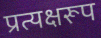
प्रत्यक्षरूप